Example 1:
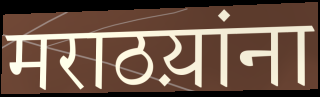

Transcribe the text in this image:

मराठय़ांना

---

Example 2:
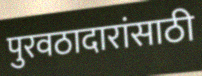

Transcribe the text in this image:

पुरवठादारांसाठी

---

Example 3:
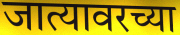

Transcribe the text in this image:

जात्यावरच्या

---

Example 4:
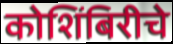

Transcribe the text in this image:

कोशिंबिरीचे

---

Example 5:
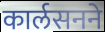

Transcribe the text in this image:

कार्लसनने